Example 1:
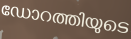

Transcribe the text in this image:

ഡോറത്തിയുടെ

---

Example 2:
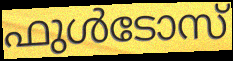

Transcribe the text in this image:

ഫുൾടോസ്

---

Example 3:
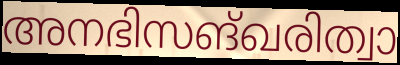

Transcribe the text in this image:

അനഭിസങ്ഖരിത്വാ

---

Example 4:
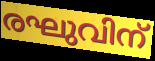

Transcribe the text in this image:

രഘുവിന്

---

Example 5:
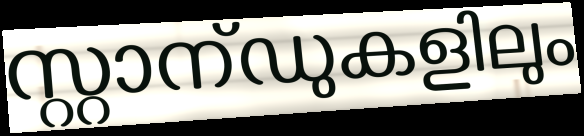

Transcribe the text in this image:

സ്റ്റാന്ഡുകളിലും